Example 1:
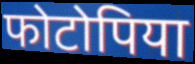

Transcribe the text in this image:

फोटोपिया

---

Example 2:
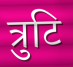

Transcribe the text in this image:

त्रुटि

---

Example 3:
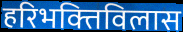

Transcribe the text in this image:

हरिभक्तिविलास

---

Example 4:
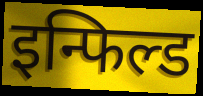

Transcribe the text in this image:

इन्फिल्ड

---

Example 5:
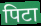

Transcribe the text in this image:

पिटा